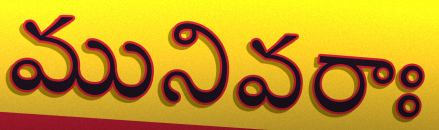
మునివరాః